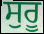
ਸੁਰੂ